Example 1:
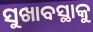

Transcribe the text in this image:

ସୁଖାବସ୍ଥାକୁ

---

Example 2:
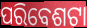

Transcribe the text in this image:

ପରିବେଶଟା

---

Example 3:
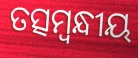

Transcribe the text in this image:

ତତ୍ସମ୍ବନ୍ଧୀୟ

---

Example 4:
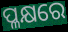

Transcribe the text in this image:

ପ୍ଳକ୍ଷରେ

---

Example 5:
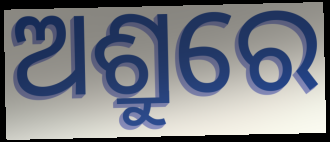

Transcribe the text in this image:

ଅଶ୍ରୁରେ